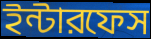
ইন্টারফেস